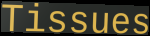
Tissues